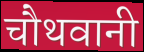
चौथवानी